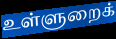
உள்ளுறைக்